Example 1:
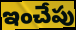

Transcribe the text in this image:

ఇంచేపు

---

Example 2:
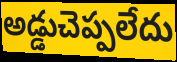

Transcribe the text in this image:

అడ్డుచెప్పలేదు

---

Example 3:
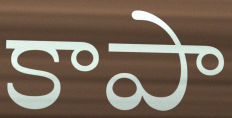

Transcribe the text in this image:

కాపా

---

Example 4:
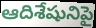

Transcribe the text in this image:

ఆదిశేషునిపై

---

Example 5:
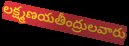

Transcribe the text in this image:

లక్ష్మణయతీంద్రులవారు